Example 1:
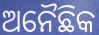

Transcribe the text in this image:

ଅନୈଛିକ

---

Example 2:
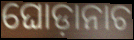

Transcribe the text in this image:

ଘୋଡ଼ାନାଚ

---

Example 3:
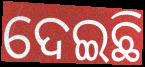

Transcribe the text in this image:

ଦେଇଛି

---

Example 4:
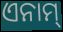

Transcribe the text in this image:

ଏନାମ୍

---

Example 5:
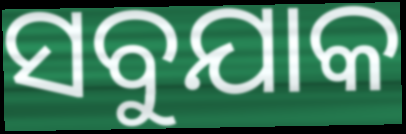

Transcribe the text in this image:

ସବୁଯାକ